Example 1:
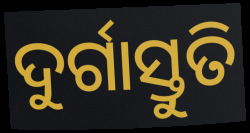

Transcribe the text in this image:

ଦୁର୍ଗାସ୍ତୁତି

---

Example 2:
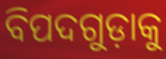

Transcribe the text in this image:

ବିପଦଗୁଡ଼ାକୁ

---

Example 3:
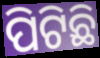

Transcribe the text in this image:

ପିଟିଛି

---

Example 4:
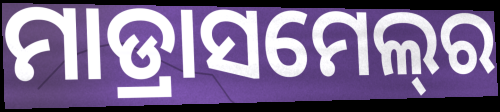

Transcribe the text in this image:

ମାଡ୍ରାସମେଲ୍‍ର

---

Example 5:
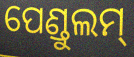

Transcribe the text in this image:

ପେଣ୍ଡୁଲମ୍